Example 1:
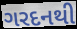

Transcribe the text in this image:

ગરદનથી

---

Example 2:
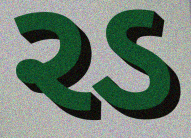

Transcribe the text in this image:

રડ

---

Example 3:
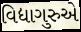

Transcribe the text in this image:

વિદ્યાગુરુએ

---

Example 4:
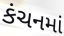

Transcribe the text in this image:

કંચનમાં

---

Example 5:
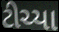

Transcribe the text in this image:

ટીચ્યા